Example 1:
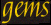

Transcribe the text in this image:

gems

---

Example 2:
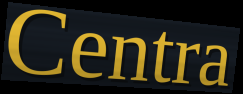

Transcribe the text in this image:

Centra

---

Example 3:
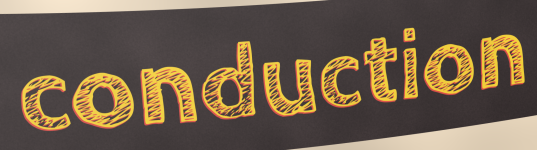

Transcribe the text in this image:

conduction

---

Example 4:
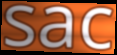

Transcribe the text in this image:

sac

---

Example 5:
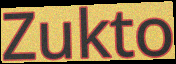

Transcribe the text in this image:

Zukto